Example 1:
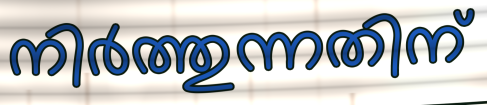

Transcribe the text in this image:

നിർത്തുന്നതിന്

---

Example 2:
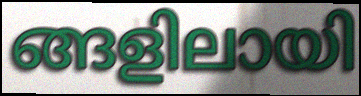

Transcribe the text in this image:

ങ്ങളിലായി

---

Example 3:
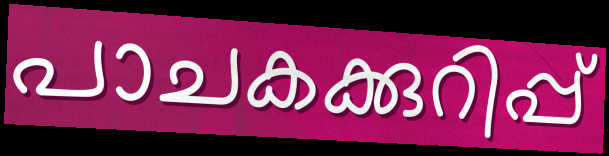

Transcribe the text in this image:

പാചകക്കുറിപ്പ്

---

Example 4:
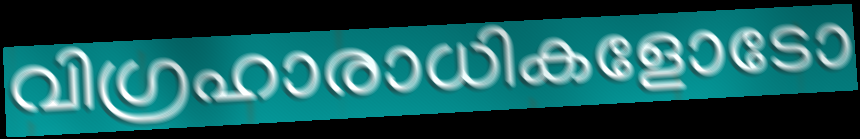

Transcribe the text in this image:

വിഗ്രഹാരാധികളോടോ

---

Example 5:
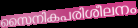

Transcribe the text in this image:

സൈനികപരിശീലനം